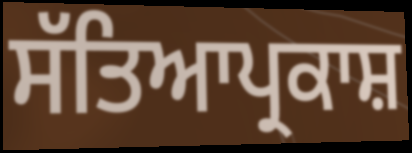
ਸੱਤਿਆਪ੍ਰਕਾਸ਼